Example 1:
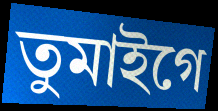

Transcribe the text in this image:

তুমাইগে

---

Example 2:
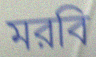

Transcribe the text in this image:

মরবি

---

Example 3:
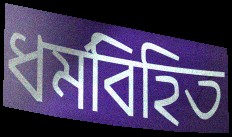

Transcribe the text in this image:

ধর্মবিহিত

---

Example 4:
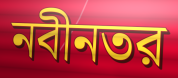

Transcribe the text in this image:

নবীনতর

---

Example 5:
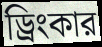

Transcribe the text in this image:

ড্রিংকার